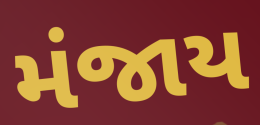
મંજાય